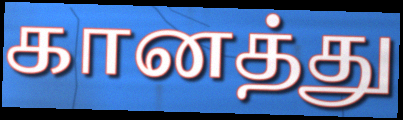
கானத்து